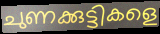
ചുണക്കുട്ടികളെ